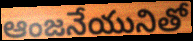
ఆంజనేయునితో